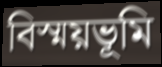
বিস্ময়ভূমি